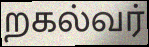
றகல்வர்